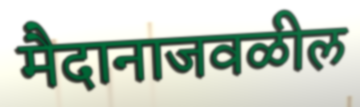
मैदानाजवळील